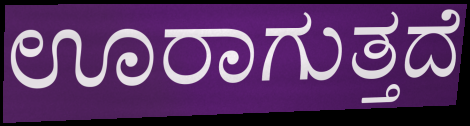
ಊರಾಗುತ್ತದೆ